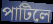
পাটিলে